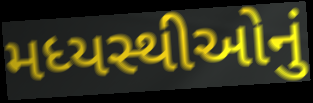
મધ્યસ્થીઓનું